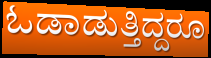
ಓಡಾಡುತ್ತಿದ್ದರೂ